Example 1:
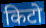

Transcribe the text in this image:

किटो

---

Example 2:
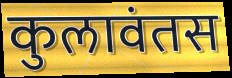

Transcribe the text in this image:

कुलावंतस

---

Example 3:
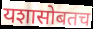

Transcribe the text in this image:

यशासोबतच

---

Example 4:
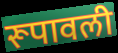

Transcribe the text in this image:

रूपावली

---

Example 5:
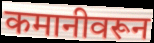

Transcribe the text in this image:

कमानीवरून